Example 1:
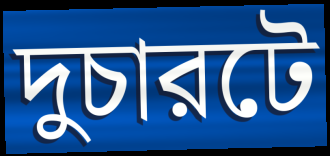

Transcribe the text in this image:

দুচারটে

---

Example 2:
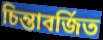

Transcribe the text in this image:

চিন্তাবর্জিত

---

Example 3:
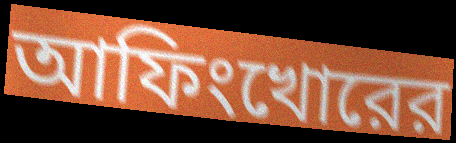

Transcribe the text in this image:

আফিংখোরের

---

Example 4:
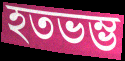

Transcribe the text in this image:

হতভম্ভ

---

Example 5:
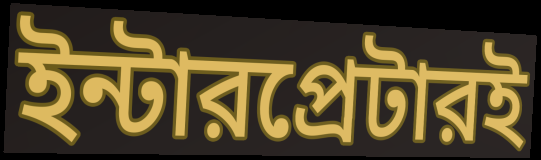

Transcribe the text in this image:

ইন্টারপ্রেটারই